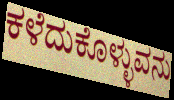
ಕಳೆದುಕೊಳ್ಳುವನು